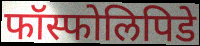
फॉस्फोलिपिडे